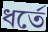
ধর্তে